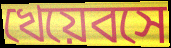
খেয়েবসে